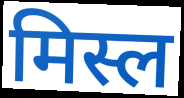
मिस्ल